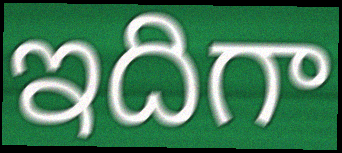
ఇదిగా